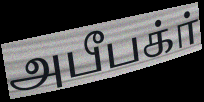
அபீபக்ர்